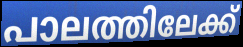
പാലത്തിലേക്ക്